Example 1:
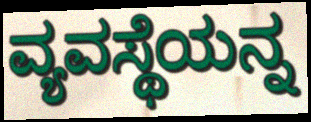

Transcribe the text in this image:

ವ್ಯವಸ್ಥೆಯನ್ನ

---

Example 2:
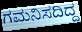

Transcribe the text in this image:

ಗಮನಿಸದಿದ್ದ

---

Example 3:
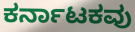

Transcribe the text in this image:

ಕರ್ನಾಟಕವು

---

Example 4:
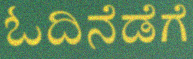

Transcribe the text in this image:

ಓದಿನೆಡೆಗೆ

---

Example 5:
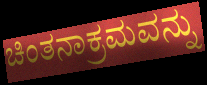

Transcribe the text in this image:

ಚಿಂತನಾಕ್ರಮವನ್ನು